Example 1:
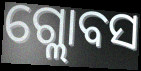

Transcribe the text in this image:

ଗ୍ଲୋବସ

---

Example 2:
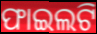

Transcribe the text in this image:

ଫାଇଲଟି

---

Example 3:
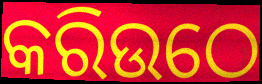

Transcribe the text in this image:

କରିଉଠେ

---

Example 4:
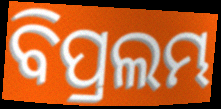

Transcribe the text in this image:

ବିପ୍ରଲମ୍ଭ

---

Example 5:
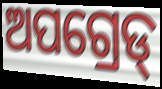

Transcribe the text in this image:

ଅପଗ୍ରେଡ୍